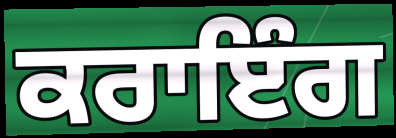
ਕਰਾਇੰਗ